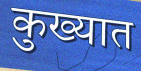
कुख्यात